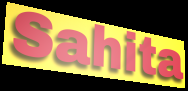
Sahita